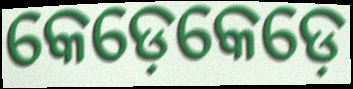
କେଡ଼େକେଡ଼େ